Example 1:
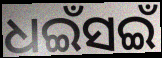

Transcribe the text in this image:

ଧଇଁସଇଁ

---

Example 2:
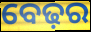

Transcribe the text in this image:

ବେଢ଼ର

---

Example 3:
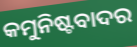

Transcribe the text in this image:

କମୁନିଷ୍ଟବାଦର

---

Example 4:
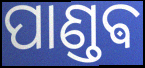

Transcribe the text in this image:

ପାଣ୍ଡଵ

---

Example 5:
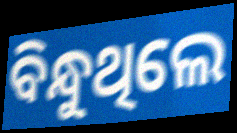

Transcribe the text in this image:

ବିନ୍ଧୁଥିଲେ